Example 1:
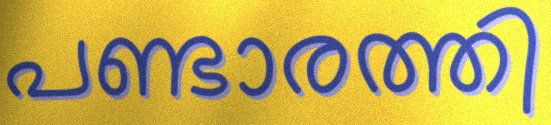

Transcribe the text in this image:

പണ്ടാരത്തി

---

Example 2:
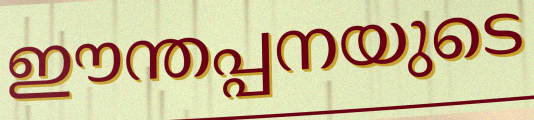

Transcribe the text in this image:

ഈന്തപ്പനയുടെ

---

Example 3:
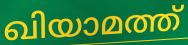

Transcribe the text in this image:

ഖിയാമത്ത്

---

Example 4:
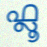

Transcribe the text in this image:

ഫ്ലൂ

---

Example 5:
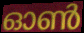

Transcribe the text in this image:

ഓൺ